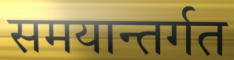
समयान्तर्गत